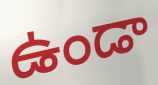
ఉండా